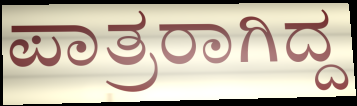
ಪಾತ್ರರಾಗಿದ್ದ